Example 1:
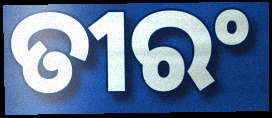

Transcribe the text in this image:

ତୀରଂ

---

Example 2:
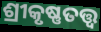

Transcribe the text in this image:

ଶ୍ରୀକୃଷ୍ଣତତ୍ତ୍ଵ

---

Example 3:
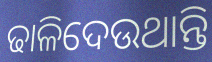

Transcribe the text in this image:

ଢାଳିଦେଉଥାନ୍ତି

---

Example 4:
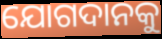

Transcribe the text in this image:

ଯୋଗଦାନକୁ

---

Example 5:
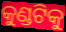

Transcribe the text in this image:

କୁଣ୍ଡଟିକୁ